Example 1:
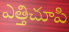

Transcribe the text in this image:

ఎత్తిచూపి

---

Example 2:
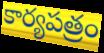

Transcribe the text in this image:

కార్యపత్రం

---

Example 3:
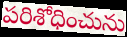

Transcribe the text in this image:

పరిశోధించును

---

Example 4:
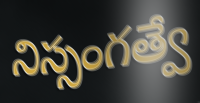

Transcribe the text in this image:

నిస్సంగత్వే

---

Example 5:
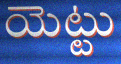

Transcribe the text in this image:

యెట్టు